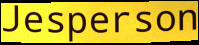
Jesperson